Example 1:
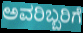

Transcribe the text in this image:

ಅವರಿಬ್ಬರಿಗೆ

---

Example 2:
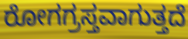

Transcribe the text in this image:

ರೋಗಗ್ರಸ್ತವಾಗುತ್ತದೆ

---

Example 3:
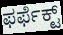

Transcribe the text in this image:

ಫರ್ಫೆಕ್ಟ್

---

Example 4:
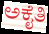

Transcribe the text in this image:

ಅಕೈತಿ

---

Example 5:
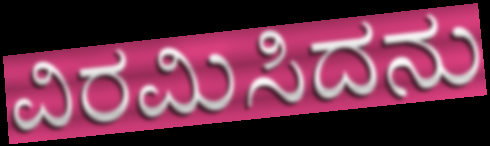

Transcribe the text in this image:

ವಿರಮಿಸಿದನು